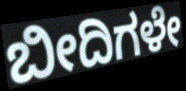
ಬೀದಿಗಳೇ